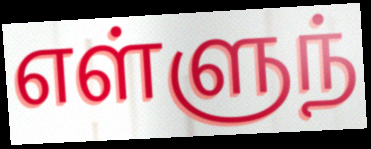
எள்ளுந்